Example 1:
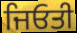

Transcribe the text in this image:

ਜਿਓਤੀ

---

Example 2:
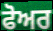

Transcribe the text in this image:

ਫੋਅਰ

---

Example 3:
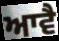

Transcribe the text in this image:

ਆਵੈ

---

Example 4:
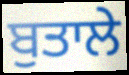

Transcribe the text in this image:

ਬੁਤਾਲੇ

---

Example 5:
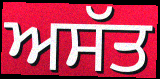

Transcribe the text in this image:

ਅਸੱਤ